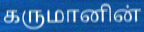
கருமானின்